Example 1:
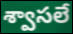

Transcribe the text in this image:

శ్వాసలే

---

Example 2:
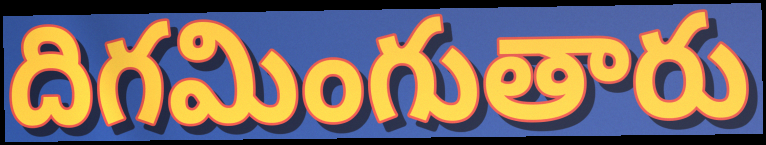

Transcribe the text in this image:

దిగమింగుతారు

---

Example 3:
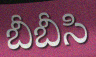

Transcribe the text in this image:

బీబీసి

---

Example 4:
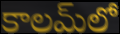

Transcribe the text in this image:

కాలమ్‍లో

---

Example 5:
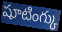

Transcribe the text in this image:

షూటింగ్కు